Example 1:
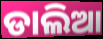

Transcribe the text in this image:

ଡାଲିଆ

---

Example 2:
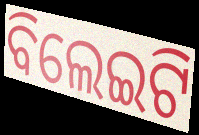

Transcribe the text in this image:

ବିଲେଇଟି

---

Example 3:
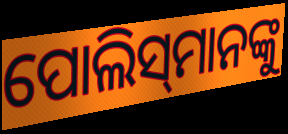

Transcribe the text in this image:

ପୋଲିସ୍‌ମାନଙ୍କୁ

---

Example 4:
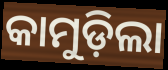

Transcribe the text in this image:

କାମୁଡ଼ିଲା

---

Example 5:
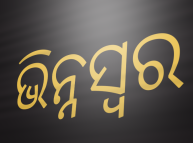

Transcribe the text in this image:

ଭିନ୍ନସ୍ବର